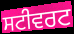
ਸਟੀਵਰਟ